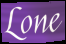
Lone